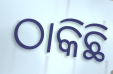
ଠାକିଛି